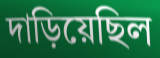
দাড়িয়েছিল